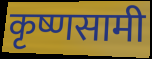
कृष्णसामी